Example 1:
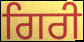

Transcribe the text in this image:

ਗਿਰੀ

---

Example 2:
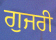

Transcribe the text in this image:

ਗੁਜਰੀ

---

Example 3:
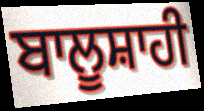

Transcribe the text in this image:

ਬਾਲੂਸ਼ਾਹੀ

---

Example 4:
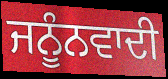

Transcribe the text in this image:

ਜਨੂੰਨਵਾਦੀ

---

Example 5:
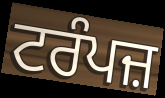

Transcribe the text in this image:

ਟਰੰਪਜ਼